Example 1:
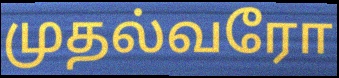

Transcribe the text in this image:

முதல்வரோ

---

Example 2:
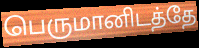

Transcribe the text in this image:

பெருமானிடத்தே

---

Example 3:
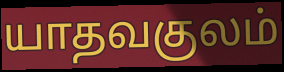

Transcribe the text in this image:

யாதவகுலம்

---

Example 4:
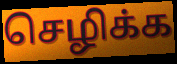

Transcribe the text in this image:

செழிக்க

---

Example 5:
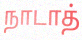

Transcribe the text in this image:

நாடாத்